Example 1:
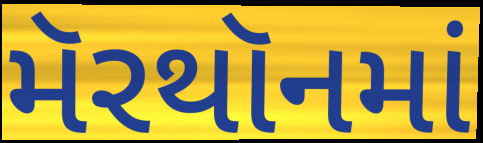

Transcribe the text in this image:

મૅરથૉનમાં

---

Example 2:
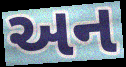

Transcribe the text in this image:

અન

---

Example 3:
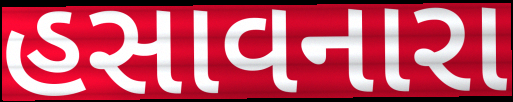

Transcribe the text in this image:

હસાવનારા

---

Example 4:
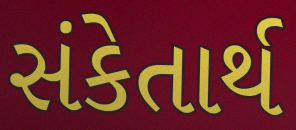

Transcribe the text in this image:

સંકેતાર્થ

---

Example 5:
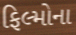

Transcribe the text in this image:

ફિલ્મોના